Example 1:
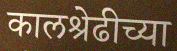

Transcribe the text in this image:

कालश्रेढीच्या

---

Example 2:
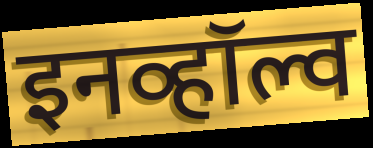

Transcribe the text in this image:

इनव्हॉल्व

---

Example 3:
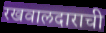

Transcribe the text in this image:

रखवालदाराची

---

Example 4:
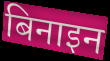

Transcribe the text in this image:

बिनाइन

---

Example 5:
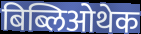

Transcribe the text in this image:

बिब्लिओथेक